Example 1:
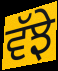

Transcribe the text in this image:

ਵੱਝੇ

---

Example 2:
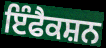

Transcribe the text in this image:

ਇੰਫੈਕਸ਼ਨ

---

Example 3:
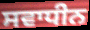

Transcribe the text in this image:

ਸਵਾਧੀਨ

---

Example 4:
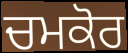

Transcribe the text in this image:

ਚਮਕੋਰ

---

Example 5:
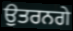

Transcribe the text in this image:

ਉਤਰਨਗੇ